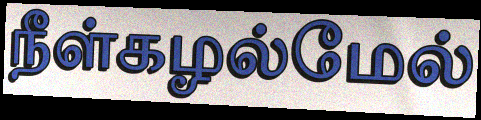
நீள்கழல்மேல்